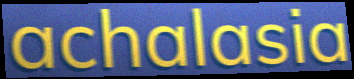
achalasia